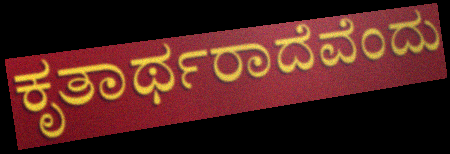
ಕೃತಾರ್ಥರಾದೆವೆಂದು